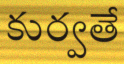
కుర్వతే